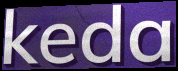
keda